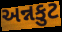
અન્નકુટ